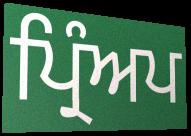
ਪ੍ਰਿੰਅਪ